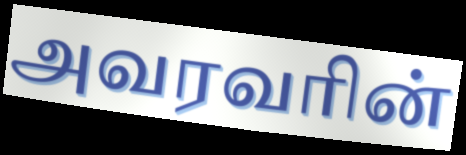
அவரவரின்